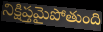
నిక్షిప్తమైపోతుంది